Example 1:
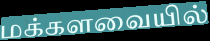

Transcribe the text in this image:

மக்களவையில்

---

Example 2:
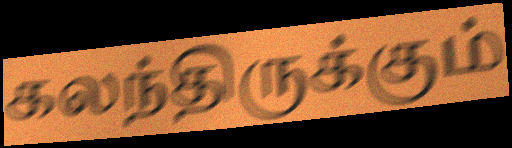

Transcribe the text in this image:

கலந்திருக்கும்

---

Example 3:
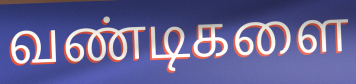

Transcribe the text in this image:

வண்டிகளை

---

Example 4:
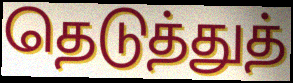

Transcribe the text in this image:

தெடுத்துத்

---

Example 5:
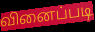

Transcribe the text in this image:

வினைப்படி